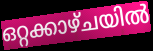
ഒറ്റക്കാഴ്ചയിൽ